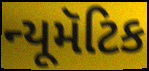
ન્યૂમૅટિક